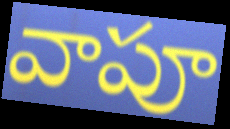
వాపూ